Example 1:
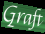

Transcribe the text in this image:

Graft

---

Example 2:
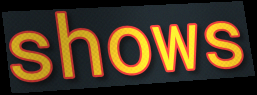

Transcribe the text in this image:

shows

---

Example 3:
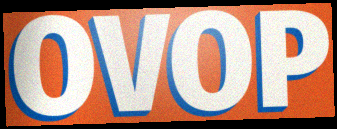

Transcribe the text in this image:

OVOP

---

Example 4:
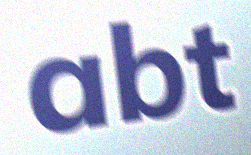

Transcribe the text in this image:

abt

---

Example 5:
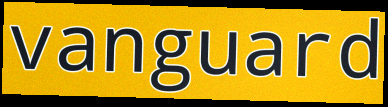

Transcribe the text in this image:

vanguard